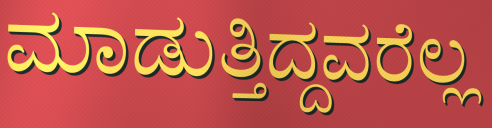
ಮಾಡುತ್ತಿದ್ದವರೆಲ್ಲ